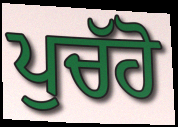
ਪੁਚੱਹੋ